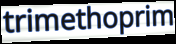
trimethoprim